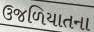
ઉજળિયાતના